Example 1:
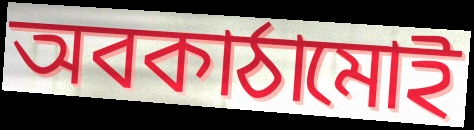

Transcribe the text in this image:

অবকাঠামোই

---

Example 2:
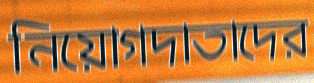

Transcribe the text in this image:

নিয়োগদাতাদের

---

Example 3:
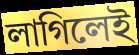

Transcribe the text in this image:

লাগিলেই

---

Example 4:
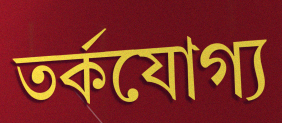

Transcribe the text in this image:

তর্কযোগ্য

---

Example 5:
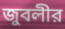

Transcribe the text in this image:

জুবলীর